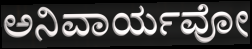
ಅನಿವಾರ್ಯವೋ